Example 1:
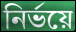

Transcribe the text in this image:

নিৰ্ভয়ে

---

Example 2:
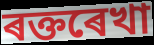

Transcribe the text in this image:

ৰক্তৰেখা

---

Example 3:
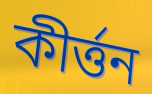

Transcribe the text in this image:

কীৰ্ত্তন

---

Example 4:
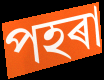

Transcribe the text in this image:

পহৰা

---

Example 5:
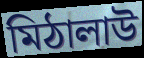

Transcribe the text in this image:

মিঠালাউ